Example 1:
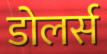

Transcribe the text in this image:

डोलर्स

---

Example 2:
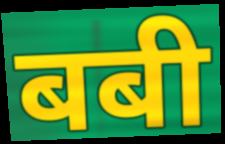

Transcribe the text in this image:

बबी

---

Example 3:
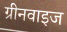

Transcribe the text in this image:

ग्रीनवाइज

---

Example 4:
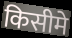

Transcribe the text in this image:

किसीमे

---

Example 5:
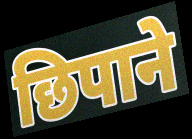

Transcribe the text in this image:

छिपाने